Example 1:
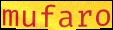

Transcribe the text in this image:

mufaro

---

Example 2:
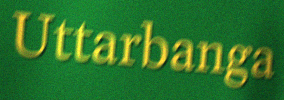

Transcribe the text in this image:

Uttarbanga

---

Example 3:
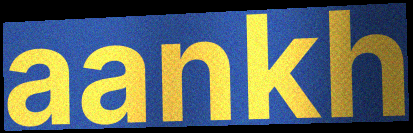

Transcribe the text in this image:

aankh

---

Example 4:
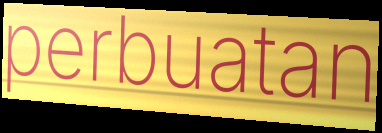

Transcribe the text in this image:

perbuatan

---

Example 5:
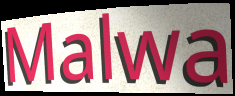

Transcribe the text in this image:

Malwa